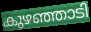
കുഴഞ്ഞാടി